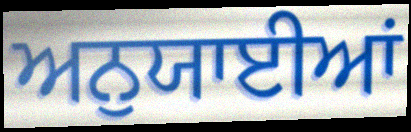
ਅਨੁਯਾਈਆਂ